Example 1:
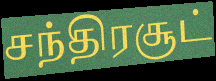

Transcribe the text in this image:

சந்திரசூட்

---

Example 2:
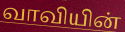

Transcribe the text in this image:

வாவியின்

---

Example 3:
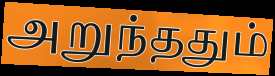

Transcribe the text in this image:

அறுந்ததும்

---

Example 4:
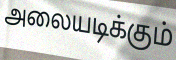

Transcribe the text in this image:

அலையடிக்கும்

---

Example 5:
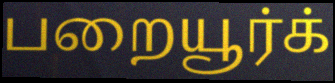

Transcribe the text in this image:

பறையூர்க்